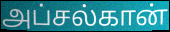
அப்சல்கான்